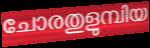
ചോരതുളുമ്പിയ